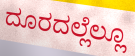
ದೂರದಲ್ಲೆಲ್ಲೂ